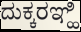
ದುಕ್ಕರಞ್ಹಿ